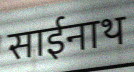
साईनाथ